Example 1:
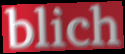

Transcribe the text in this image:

blich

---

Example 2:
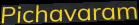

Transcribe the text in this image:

Pichavaram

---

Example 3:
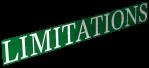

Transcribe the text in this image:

LIMITATIONS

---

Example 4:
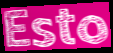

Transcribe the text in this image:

Esto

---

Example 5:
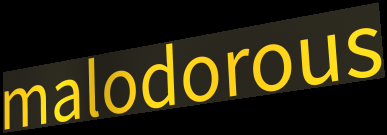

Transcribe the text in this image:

malodorous